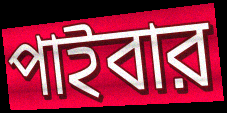
পাইবার